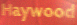
Haywood